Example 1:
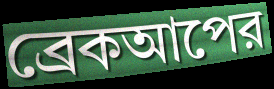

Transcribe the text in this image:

ব্রেকআপের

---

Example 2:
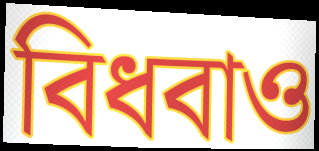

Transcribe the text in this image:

বিধবাও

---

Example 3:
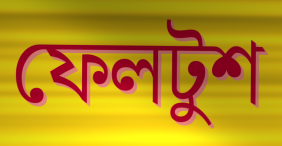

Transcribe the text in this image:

ফেলটুশ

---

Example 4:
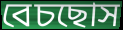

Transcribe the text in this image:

বেচছোস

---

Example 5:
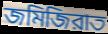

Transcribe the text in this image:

জমিজিরাত